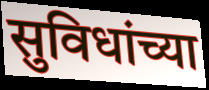
सुविधांच्या